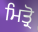
ਮਿਤ੍ਰੋ